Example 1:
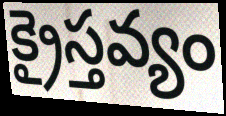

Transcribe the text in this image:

క్రైస్తవ్యం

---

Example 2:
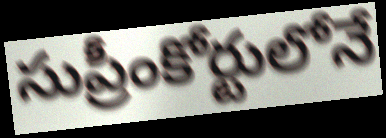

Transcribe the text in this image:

సుప్రీంకోర్టులోనే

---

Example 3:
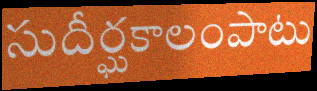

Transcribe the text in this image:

సుదీర్ఘకాలంపాటు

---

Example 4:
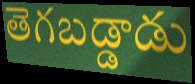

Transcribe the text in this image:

తెగబడ్డాడు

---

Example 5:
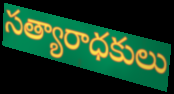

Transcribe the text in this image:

సత్యారాధకులు